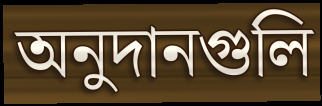
অনুদানগুলি